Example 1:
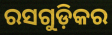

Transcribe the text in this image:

ରସଗୁଡ଼ିକର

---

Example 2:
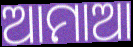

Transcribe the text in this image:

ଆମାଆ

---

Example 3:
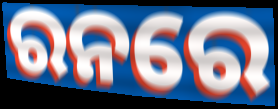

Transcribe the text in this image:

ରନରେ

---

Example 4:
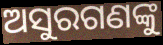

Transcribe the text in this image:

ଅସୁରଗଣଙ୍କୁ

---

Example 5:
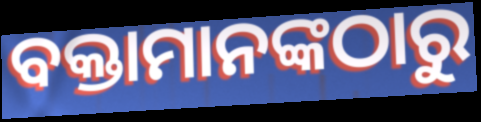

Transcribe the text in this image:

ବକ୍ତାମାନଙ୍କଠାରୁ